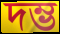
দম্ভ